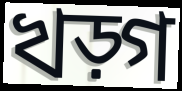
খড়্গ